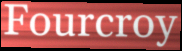
Fourcroy